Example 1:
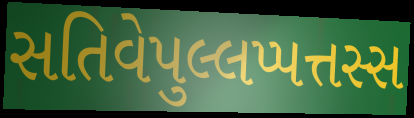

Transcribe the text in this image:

સતિવેપુલ્લપ્પત્તસ્સ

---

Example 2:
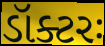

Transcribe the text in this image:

ડૉક્ટરઃ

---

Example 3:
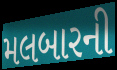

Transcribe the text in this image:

મલબારની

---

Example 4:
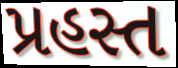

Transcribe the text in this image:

પ્રહસ્ત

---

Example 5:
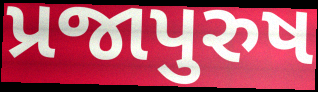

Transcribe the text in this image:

પ્રજાપુરુષ